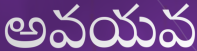
అవయవ